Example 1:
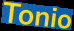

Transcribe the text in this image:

Tonio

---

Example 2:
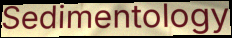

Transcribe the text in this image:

Sedimentology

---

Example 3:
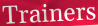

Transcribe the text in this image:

Trainers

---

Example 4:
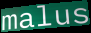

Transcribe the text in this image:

malus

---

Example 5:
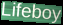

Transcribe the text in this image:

Lifeboy